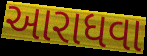
આરાધવા